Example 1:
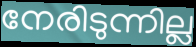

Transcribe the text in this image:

നേരിടുന്നില്ല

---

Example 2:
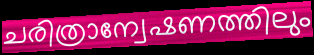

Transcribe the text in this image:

ചരിത്രാന്വേഷണത്തിലും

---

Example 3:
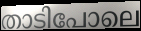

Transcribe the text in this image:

താടിപോലെ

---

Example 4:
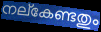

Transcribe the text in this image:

നല്കേണ്ടതും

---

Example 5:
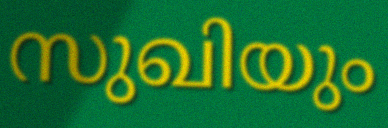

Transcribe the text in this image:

സുഖിയും